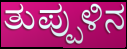
ತುಪ್ಪುಳಿನ